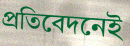
প্রতিবেদনেই